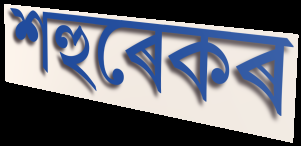
শহুৰেকৰ